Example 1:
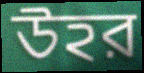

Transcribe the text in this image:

উহর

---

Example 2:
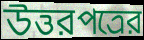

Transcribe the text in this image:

উত্তরপত্রের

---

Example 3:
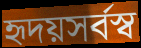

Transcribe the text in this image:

হৃদয়সর্বস্ব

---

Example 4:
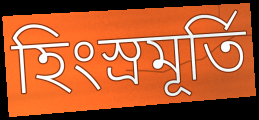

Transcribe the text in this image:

হিংস্রমূর্তি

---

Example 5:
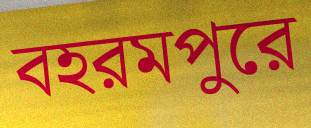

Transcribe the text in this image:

বহরমপুরে